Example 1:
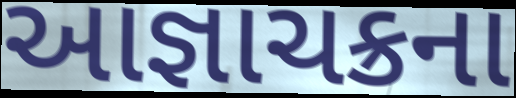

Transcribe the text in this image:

આજ્ઞાચક્રના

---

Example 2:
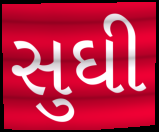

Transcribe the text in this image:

સુઘી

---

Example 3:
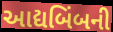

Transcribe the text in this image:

આદ્યબિંબની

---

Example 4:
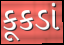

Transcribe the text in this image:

કૂકડાં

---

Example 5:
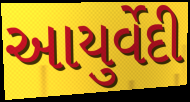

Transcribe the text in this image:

આયુર્વેદી